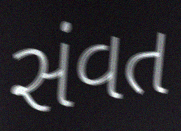
સંવત